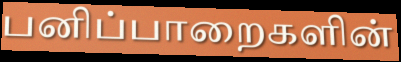
பனிப்பாறைகளின்